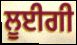
ਲੂਈਗੀ